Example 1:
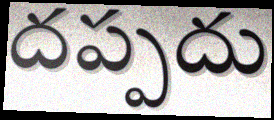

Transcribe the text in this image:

దప్పదు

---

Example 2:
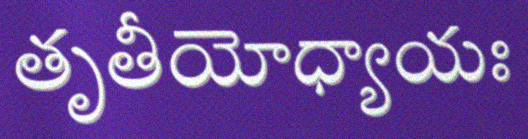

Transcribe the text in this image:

తృతీయోధ్యాయః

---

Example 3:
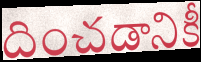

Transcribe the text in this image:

దించడానికీ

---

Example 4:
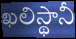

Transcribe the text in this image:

ఖలిస్థానీ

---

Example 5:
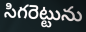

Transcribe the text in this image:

సిగరెట్టును